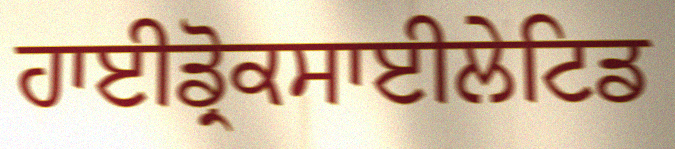
ਹਾਈਡ੍ਰੋਕਸਾਈਲੇਟਿਡ